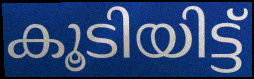
കൂടിയിട്ട്